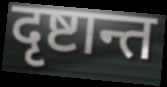
दृष्टान्त